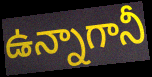
ఉన్నాగానీ